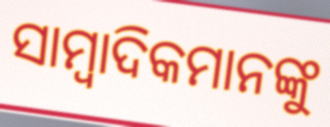
ସାମ୍ବାଦିକମାନଙ୍କୁ